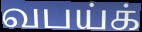
வபய்க்